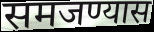
समजण्यास